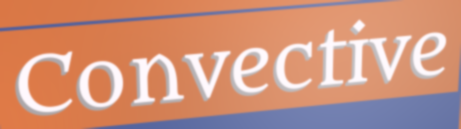
Convective